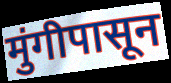
मुंगीपासून